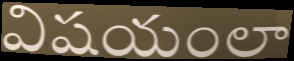
విషయంలా